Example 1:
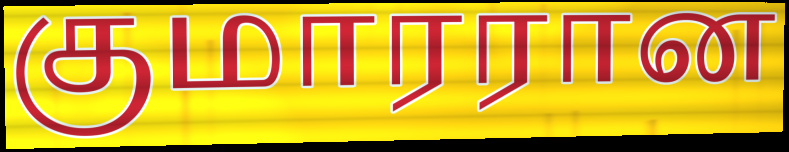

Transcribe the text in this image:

குமாரரான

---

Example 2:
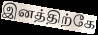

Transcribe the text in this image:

இனத்திற்கே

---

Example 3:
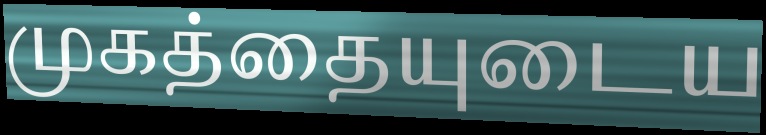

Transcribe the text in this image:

முகத்தையுடைய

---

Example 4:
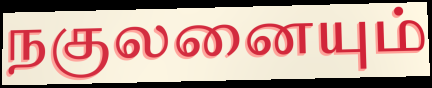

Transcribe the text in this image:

நகுலனையும்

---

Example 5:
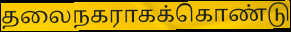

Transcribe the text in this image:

தலைநகராகக்கொண்டு